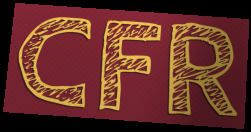
CFR